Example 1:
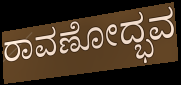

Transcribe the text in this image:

ರಾವಣೋದ್ಭವ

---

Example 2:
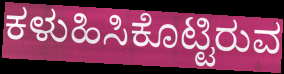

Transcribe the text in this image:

ಕಳುಹಿಸಿಕೊಟ್ಟಿರುವ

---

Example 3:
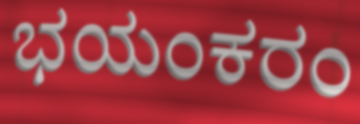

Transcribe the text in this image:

ಭಯಂಕರಂ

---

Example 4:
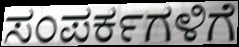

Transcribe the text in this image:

ಸಂಪರ್ಕಗಳಿಗೆ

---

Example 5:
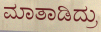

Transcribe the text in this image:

ಮಾತಾಡಿದ್ರು